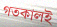
গতকালই